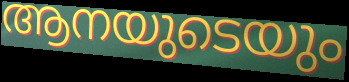
ആനയുടെയും